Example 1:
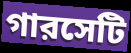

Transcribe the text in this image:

গারসেটি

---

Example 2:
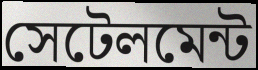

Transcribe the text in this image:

সেটেলমেন্ট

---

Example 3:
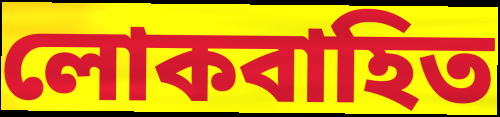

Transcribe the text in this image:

লোকবাহিত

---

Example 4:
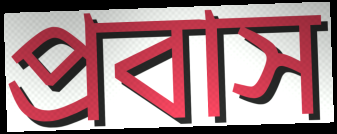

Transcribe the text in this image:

প্রবাস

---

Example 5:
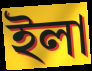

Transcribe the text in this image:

ইলা